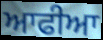
ਆਫੀਆ